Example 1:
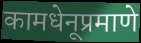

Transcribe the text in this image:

कामधेनूप्रमाणे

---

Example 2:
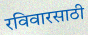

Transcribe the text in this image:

रविवारसाठी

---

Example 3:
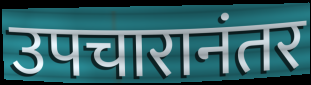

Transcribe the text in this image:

उपचारानंतर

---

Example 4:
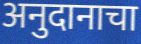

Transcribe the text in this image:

अनुदानाचा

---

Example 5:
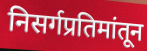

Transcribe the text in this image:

निसर्गप्रतिमांतून